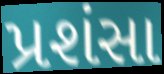
પ્રશંસા